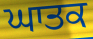
ਘਾਤਕ